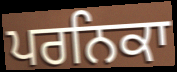
ਪਰਨਿਕਾ